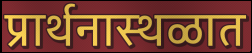
प्रार्थनास्थळात